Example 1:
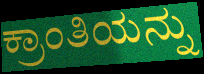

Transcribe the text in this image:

ಕ್ರಾಂತಿಯನ್ನು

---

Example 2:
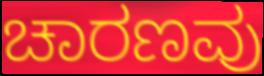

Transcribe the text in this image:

ಚಾರಣವು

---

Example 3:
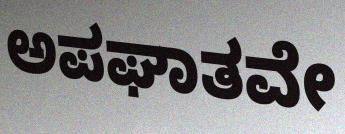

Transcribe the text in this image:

ಅಪಘಾತವೇ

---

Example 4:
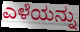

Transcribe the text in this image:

ಎಳೆಯನ್ನು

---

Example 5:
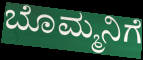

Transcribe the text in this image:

ಬೊಮ್ಮನಿಗೆ